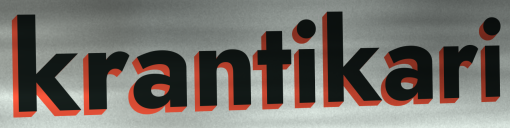
krantikari